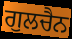
ਗੁਲਚੈਨ